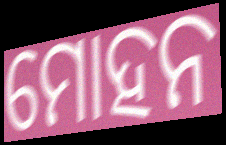
ମୋହନ